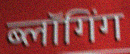
ब्लॉगिंग